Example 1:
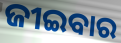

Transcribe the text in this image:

ଜୀଇବାର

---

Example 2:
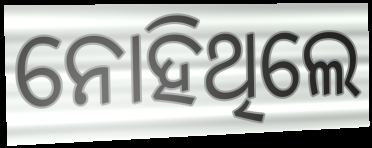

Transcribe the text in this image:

ନୋହିଥିଲେ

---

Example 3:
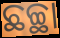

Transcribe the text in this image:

ଛଚ୍ଛା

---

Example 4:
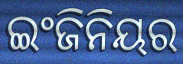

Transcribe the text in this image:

ଇଂଜିନିୟର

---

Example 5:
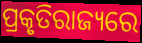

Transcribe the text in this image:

ପ୍ରକୃତିରାଜ୍ୟରେ